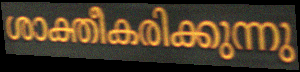
ശാക്തീകരിക്കുന്നു